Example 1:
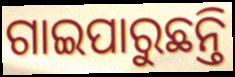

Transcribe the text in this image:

ଗାଇପାରୁଛନ୍ତି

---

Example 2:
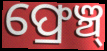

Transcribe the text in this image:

ଫ୍ରେଞ୍ଚ୍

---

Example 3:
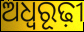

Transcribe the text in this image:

ଅଧ୍ଵରୂଢ଼ୀ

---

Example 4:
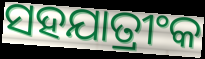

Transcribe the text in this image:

ସହଯାତ୍ରୀଂକ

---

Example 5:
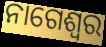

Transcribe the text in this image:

ନାଗେଶ୍ଵର